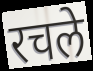
रचले